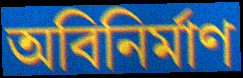
অবিনির্মাণ